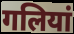
गलियां